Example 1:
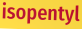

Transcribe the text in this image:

isopentyl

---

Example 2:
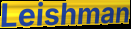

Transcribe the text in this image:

Leishman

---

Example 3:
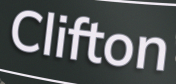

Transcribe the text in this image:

Clifton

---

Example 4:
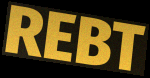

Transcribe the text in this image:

REBT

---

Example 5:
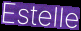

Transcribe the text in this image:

Estelle